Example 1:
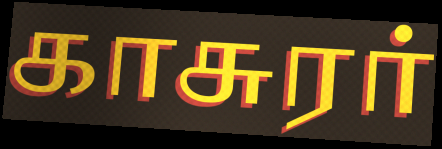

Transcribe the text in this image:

காசுரர்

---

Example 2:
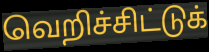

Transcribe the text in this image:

வெறிச்சிட்டுக்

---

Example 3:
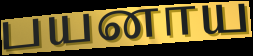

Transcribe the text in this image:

பயனாய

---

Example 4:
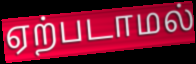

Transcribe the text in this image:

ஏற்படாமல்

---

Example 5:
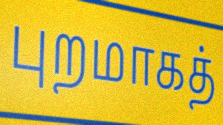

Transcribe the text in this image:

புறமாகத்